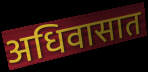
अधिवासात